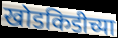
खोडकिडीच्या